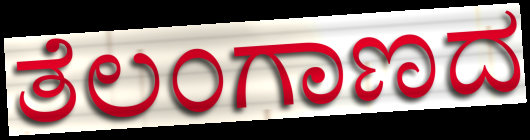
ತೆಲಂಗಾಣದ